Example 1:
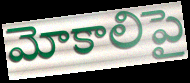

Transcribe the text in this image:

మోకాలిపై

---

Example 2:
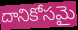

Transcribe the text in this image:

దానికోసమై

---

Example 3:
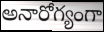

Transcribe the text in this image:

అనారోగ్యంగా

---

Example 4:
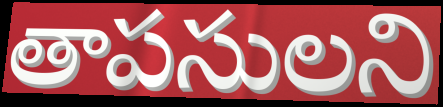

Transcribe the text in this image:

తాపసులని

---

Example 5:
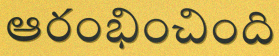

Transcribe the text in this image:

ఆరంభించింది